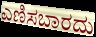
ಎಣಿಸಬಾರದು